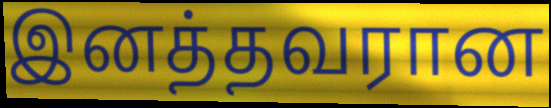
இனத்தவரான